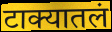
टाक्यातलं